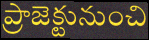
ప్రాజెక్టునుంచి